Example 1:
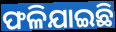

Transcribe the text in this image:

ଫଳିଯାଇଛି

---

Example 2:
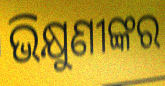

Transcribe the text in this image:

ଭିକ୍ଷୁଣୀଙ୍କର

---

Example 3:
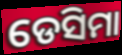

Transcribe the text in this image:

ଡେସିମା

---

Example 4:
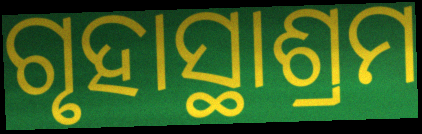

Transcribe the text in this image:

ଗୃହାସ୍ଥାଶ୍ରମ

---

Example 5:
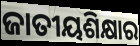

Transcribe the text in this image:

ଜାତୀୟଶିକ୍ଷାର